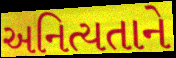
અનિત્યતાને